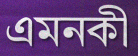
এমনকী